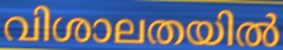
വിശാലതയിൽ